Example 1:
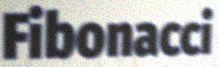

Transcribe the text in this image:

Fibonacci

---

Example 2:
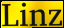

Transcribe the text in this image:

Linz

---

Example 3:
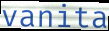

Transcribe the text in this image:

vanita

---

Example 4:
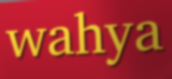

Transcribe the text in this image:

wahya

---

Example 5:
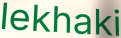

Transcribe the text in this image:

lekhaki